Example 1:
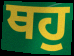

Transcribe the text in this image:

ਥਹੁ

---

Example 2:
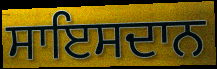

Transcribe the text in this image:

ਸਾਇਸਦਾਨ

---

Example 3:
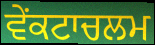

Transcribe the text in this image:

ਵੇਂਕਟਾਚਲਮ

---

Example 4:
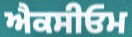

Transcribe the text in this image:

ਐਕਸੀਓਮ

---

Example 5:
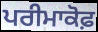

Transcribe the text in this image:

ਪਰੀਮਾਕੋਫ਼